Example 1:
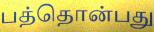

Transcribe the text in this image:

பத்தொன்பது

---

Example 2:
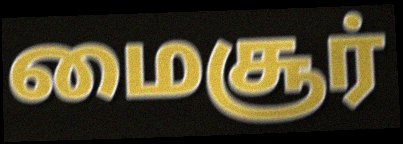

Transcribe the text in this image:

மைசூர்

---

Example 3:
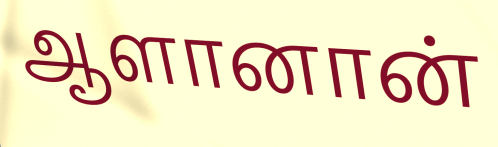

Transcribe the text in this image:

ஆளானான்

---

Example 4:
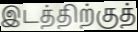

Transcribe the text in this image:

இடத்திற்குத்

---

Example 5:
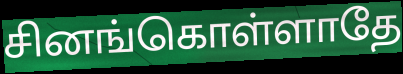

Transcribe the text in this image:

சினங்கொள்ளாதே